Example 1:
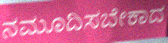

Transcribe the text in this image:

ನಮೂದಿಸಬೇಕಾದ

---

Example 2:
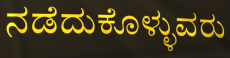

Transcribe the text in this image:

ನಡೆದುಕೊಳ್ಳುವರು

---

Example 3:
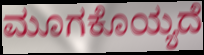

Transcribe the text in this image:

ಮೂಗಕೊಯ್ಯದೆ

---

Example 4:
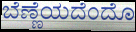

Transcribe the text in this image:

ಬೆಣ್ಣೆಯದೆಂದೊ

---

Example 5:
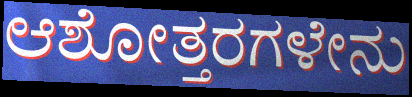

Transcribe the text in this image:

ಆಶೋತ್ತರಗಳೇನು